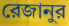
রেজানুর